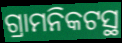
ଗ୍ରାମନିକଟସ୍ଥ